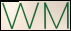
WM